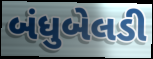
બંધુબેલડી